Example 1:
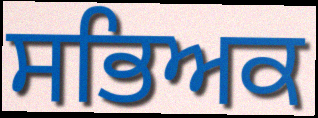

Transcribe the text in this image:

ਸਭਿਅਕ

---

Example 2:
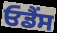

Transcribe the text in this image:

ਓਡੈਂਸ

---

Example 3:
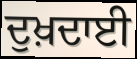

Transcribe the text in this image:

ਦੁਖ਼ਦਾਈ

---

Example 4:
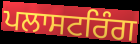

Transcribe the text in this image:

ਪਲਾਸਟਰਿੰਗ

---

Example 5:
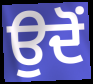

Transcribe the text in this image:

ਉਦੋੰ